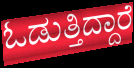
ಓಡುತ್ತಿದ್ದಾರೆ